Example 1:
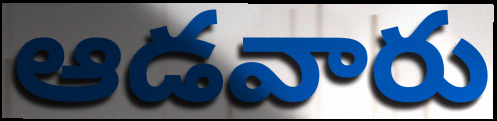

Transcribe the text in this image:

ఆడవారు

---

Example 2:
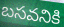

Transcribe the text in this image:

బసవనికి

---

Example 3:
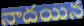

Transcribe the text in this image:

నాదయిన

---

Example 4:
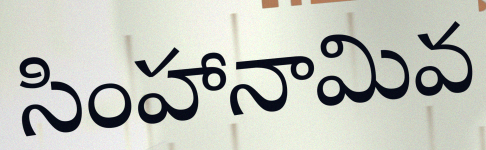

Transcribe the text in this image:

సింహానామివ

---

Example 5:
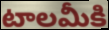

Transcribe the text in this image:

టాలమీకి